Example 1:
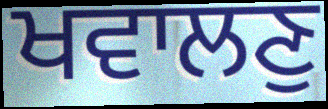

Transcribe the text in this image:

ਖਵਾਲਣੁ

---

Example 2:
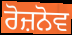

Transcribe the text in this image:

ਰੋਜ਼ਨੋਵ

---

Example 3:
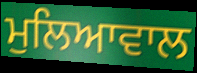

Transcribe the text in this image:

ਮੁਲਿਆਵਾਲ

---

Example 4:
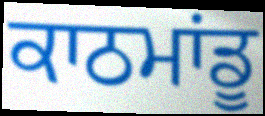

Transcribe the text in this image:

ਕਾਠਮਾਂਡੂ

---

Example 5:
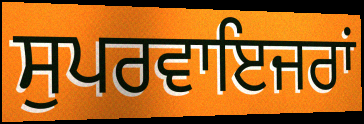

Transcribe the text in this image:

ਸੁਪਰਵਾਇਜਰਾਂ